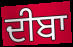
ਦੀਬਾ